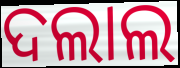
ଦଲାଲ